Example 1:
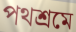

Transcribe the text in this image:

পথশ্রমে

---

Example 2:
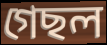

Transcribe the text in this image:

গেছল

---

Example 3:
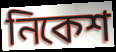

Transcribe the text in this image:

নিকেশ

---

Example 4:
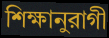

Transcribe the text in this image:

শিক্ষানুরাগী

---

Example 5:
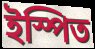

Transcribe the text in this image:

ইস্পিত